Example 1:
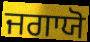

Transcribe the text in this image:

ਜਗਾਯੋ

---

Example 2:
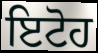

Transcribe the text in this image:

ਇਟੋਹ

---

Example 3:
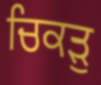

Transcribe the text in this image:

ਚਿਕੜੁ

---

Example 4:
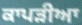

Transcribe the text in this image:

ਕਾਪੜੀਆ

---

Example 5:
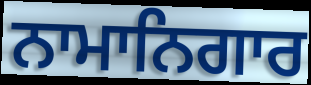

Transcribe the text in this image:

ਨਾਮਾਨਿਗਾਰ